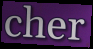
cher